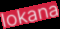
lokana